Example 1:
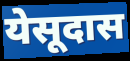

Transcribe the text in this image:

येसूदास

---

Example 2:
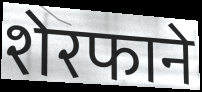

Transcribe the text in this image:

शेरफाने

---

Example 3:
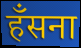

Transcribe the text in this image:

हँसना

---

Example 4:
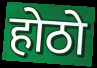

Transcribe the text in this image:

होठो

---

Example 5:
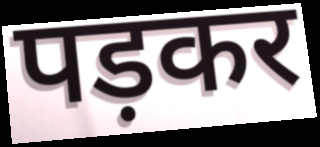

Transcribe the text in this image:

पड़कर